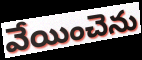
వేయించెను